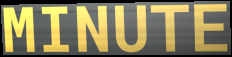
MINUTE